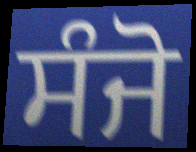
ਸੰਜੋ